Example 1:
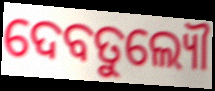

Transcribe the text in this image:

ଦେବତୁଲ୍ୟୌ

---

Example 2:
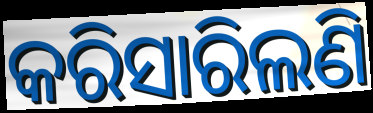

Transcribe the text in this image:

କରିସାରିଲଣି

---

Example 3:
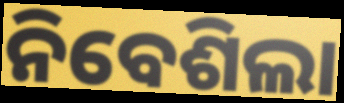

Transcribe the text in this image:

ନିବେଶିଲା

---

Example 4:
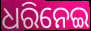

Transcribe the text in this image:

ଧରିନେଇ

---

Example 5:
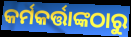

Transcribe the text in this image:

କର୍ମକର୍ତ୍ତାଙ୍କଠାରୁ